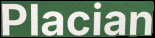
Placian